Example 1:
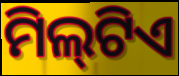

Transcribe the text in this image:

ମିଲ୍‌ଟିଏ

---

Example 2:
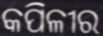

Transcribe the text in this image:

କପିଳୀର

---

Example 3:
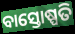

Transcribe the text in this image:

ବାସ୍ତୋଷ୍ପତି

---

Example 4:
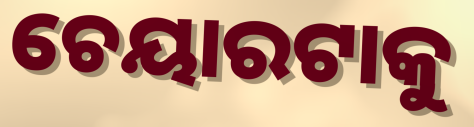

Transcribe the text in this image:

ଚେୟାରଟାକୁ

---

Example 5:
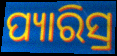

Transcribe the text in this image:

ପ୍ୟାରିସ୍ର